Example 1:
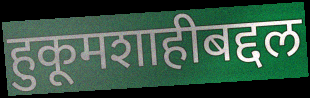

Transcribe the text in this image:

हुकूमशाहीबद्दल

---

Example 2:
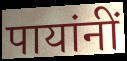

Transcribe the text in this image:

पायांनीं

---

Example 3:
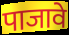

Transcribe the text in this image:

पाजावे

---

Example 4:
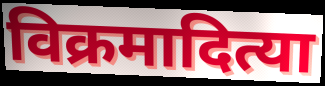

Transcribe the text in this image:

विक्रमादित्या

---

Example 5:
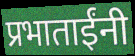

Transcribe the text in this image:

प्रभाताईंनी